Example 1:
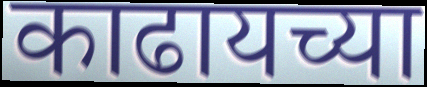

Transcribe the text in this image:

काढायच्या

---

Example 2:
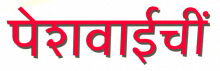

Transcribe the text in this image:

पेशवाईचीं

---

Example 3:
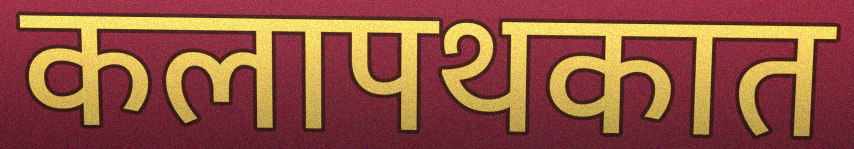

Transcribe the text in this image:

कलापथकात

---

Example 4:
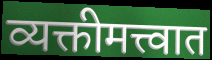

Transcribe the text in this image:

व्यक्तीमत्त्वात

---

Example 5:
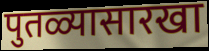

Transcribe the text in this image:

पुतळ्यासारखा